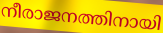
നീരാജനത്തിനായി